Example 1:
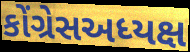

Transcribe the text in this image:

કોંગ્રેસઅધ્યક્ષ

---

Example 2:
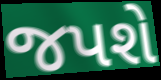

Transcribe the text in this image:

જપશે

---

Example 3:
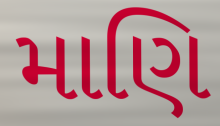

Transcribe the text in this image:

માણિ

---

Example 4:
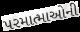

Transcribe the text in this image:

પરમાત્માઓની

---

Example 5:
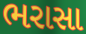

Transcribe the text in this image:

ભરાસા